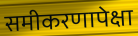
समीकरणापेक्षा